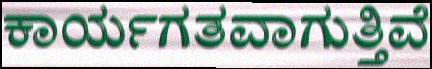
ಕಾರ್ಯಗತವಾಗುತ್ತಿವೆ